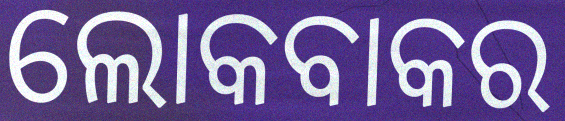
ଲୋକବାକର